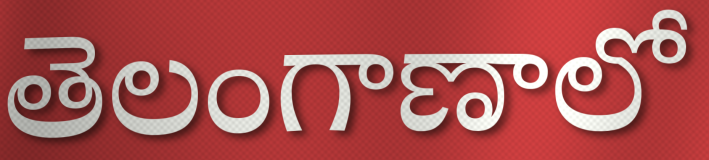
తెలంగాణాలో